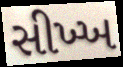
સીખ્ખ